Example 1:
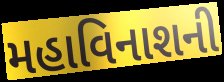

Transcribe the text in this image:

મહાવિનાશની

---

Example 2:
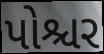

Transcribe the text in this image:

પોશ્ચર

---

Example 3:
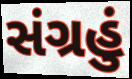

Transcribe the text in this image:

સંગ્રહું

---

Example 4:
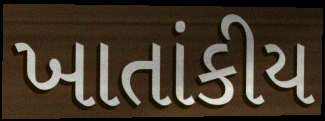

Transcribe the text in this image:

ખાતાંકીય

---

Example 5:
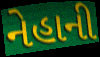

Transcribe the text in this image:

નેહાની